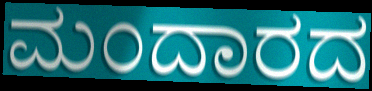
ಮಂದಾರದ